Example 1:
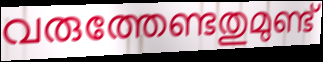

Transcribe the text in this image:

വരുത്തേണ്ടതുമുണ്ട്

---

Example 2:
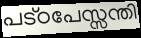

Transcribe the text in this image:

പട്ഠപേസ്സന്തി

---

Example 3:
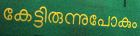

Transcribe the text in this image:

കേട്ടിരുന്നുപോകും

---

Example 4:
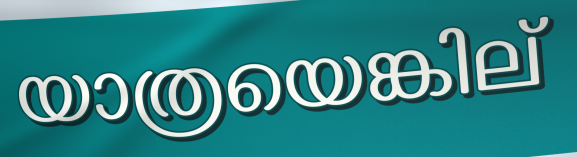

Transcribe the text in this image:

യാത്രയെങ്കില്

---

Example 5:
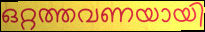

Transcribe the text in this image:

ഒറ്റത്തവണയായി